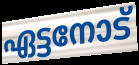
ഏട്ടനോട്